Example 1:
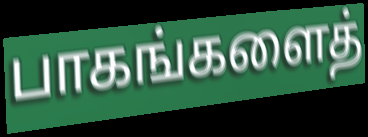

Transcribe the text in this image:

பாகங்களைத்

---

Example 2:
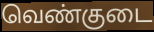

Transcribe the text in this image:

வெண்குடை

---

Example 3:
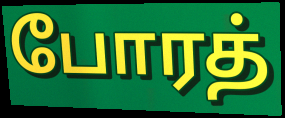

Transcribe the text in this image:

போரத்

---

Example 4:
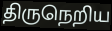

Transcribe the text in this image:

திருநெறிய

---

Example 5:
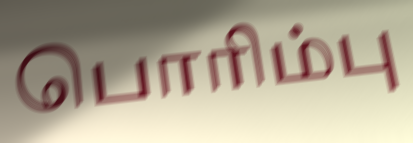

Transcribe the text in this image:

பொரிம்பு